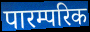
पारम्परिक